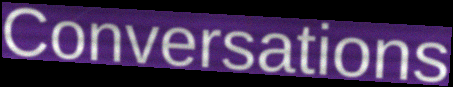
Conversations